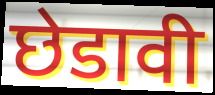
छेडावी